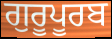
ਗੁਰੂਪੂਰਬ